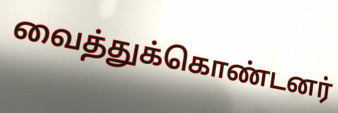
வைத்துக்கொண்டனர்